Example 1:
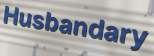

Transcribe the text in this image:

Husbandary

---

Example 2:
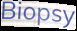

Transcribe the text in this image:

Biopsy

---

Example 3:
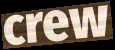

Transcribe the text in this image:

crew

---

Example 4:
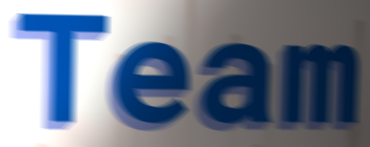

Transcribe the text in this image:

Team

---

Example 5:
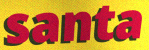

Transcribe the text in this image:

santa